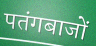
पतंगबाजों